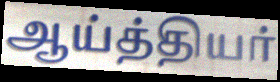
ஆய்த்தியர்